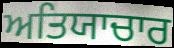
ਅਤਿਯਾਚਾਰ